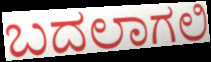
ಬದಲಾಗಲಿ